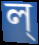
ল্